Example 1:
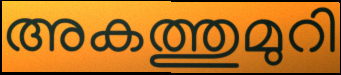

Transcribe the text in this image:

അകത്തുമുറി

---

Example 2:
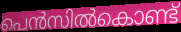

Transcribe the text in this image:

പെൻസിൽകൊണ്ട്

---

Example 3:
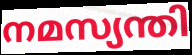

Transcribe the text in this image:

നമസ്യന്തി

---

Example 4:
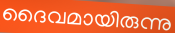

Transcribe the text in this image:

ദൈവമായിരുന്നു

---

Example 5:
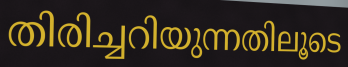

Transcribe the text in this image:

തിരിച്ചറിയുന്നതിലൂടെ